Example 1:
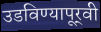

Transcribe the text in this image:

उडविण्यापूर्वी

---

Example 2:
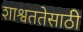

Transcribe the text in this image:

शाश्वततेसाठी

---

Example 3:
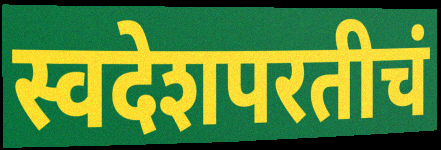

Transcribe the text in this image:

स्वदेशपरतीचं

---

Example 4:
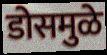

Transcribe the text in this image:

डोसमुळे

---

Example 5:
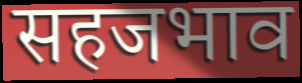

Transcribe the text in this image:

सहजभाव